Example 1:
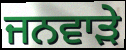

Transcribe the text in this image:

ਜਨਵਾੜੇ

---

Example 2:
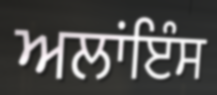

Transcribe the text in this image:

ਅਲਾਂਇੰਸ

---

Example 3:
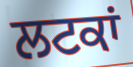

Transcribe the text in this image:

ਲਟਕਾਂ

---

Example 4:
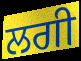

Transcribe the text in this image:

ਲਗੀ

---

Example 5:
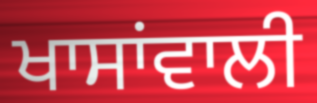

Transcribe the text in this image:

ਖਾਸਾਂਵਾਲੀ